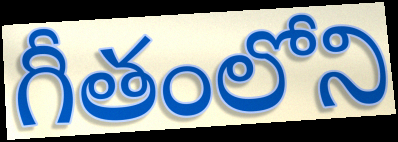
గీతంలోని